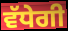
ਵੱਧੇਗੀ